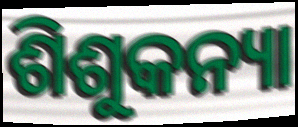
ଶିଶୁକନ୍ୟା